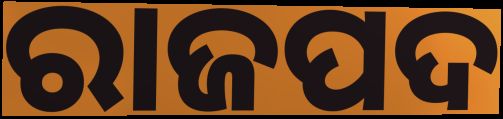
ରାଜପଦ